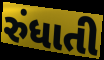
રુંધાતી